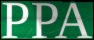
PPA